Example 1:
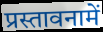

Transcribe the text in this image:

प्रस्तावनामें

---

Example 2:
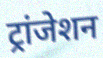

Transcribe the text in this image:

ट्रांजेशन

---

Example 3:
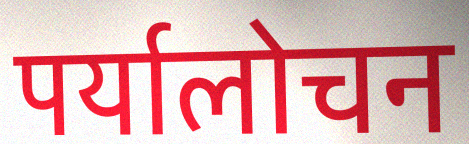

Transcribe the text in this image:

पर्यालोचन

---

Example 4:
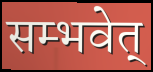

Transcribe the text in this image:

सम्भवेत्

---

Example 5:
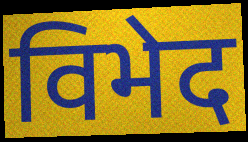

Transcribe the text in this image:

विभेद